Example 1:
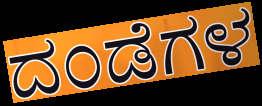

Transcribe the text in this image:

ದಂಡೆಗಳ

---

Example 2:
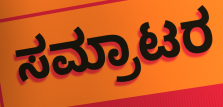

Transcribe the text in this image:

ಸಮ್ರಾಟರ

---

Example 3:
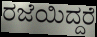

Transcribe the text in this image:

ರಜೆಯಿದ್ದರೆ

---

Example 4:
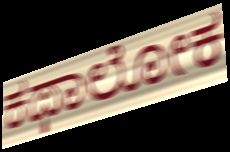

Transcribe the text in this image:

ಕಥಾಲೋಕ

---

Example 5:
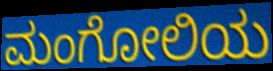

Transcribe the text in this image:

ಮಂಗೋಲಿಯ